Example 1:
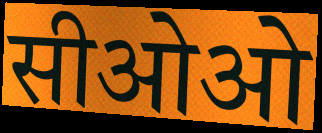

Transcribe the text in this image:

सीओओ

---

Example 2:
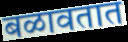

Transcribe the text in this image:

बळावतात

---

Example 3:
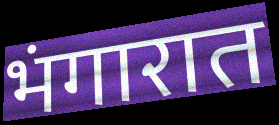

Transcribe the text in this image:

भंगारात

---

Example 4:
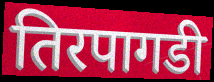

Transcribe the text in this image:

तिरपागडी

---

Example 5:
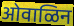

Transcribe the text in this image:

ओवाळिन